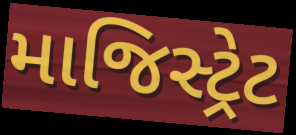
માજિસ્ટ્રેટ